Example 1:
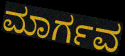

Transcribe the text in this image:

ಮಾರ್ಗವ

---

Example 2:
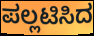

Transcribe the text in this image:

ಪಲ್ಲಟಿಸಿದ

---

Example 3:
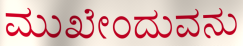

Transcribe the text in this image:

ಮುಖೇಂದುವನು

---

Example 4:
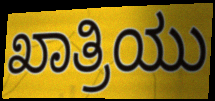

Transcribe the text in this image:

ಖಾತ್ರಿಯು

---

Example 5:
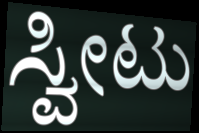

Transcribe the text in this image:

ಸ್ವೀಟು